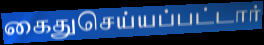
கைதுசெய்யப்பட்டார்